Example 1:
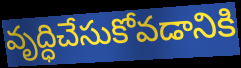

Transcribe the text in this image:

వృద్ధిచేసుకోవడానికి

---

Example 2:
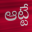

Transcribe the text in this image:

ఆట్టే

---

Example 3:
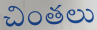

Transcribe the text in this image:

చింతలు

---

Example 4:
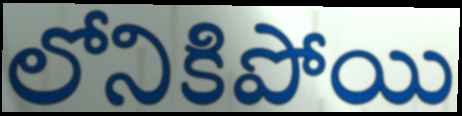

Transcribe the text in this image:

లోనికిపోయి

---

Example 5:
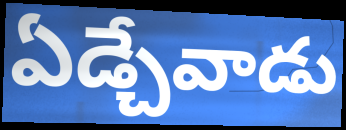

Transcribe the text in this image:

ఏడ్చేవాడు